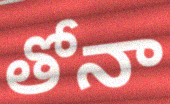
తోనా